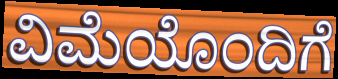
ವಿಮೆಯೊಂದಿಗೆ